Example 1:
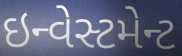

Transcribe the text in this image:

ઇન્વેસ્ટમેન્ટ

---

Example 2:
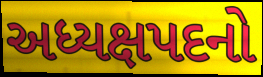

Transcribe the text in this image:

અધ્યક્ષપદનો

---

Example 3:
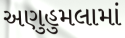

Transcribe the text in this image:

અણુહુમલામાં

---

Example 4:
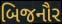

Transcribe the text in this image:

બિજનૌર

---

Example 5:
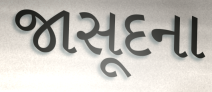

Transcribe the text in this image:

જાસૂદના